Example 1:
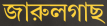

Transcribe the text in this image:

জারুলগাছ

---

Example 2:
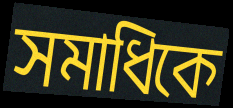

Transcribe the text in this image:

সমাধিকে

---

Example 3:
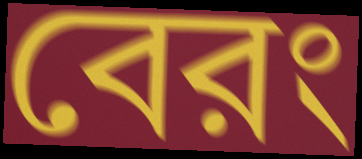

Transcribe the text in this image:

বেরং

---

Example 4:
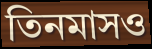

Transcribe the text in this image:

তিনমাসও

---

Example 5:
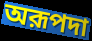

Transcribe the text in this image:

অরূপদা